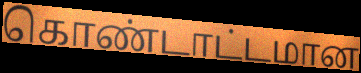
கொண்டாட்டமான